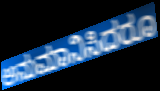
ಅನುಮಾನಿಸಿದರೂ